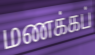
மணக்கப்